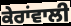
ਕੇਰਾਂਵਾਲੀ